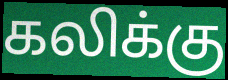
கலிக்கு